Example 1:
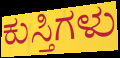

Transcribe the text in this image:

ಕುಸ್ತಿಗಳು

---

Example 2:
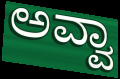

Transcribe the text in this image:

ಅವ್ವಾ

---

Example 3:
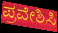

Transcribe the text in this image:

ಪ್ರವೇಶಿಸಿ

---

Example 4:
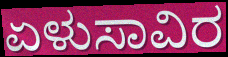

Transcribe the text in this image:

ಏಳುಸಾವಿರ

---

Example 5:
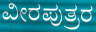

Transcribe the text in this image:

ವೀರಪುತ್ರರ